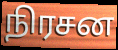
நிரசன